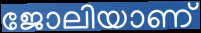
ജോലിയാണ്